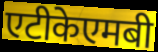
एटीकेएमबी